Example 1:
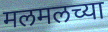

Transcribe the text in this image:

मलमलच्या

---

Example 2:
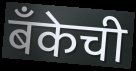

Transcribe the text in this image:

बँकेची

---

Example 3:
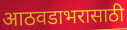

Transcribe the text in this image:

आठवडाभरासाठी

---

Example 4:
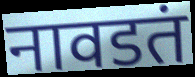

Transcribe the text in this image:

नावडतं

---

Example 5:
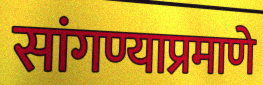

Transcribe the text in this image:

सांगण्याप्रमाणे